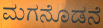
ಮಗನೊಡನೆ